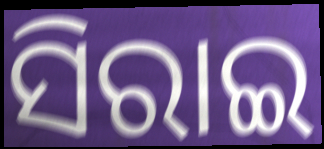
ସିରାଇ